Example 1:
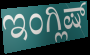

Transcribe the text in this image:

ಇಂಗ್ಲಿಷ್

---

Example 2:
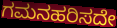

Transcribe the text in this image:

ಗಮನಹರಿಸದೇ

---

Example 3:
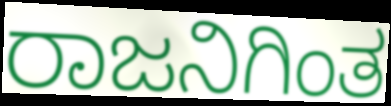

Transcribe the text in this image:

ರಾಜನಿಗಿಂತ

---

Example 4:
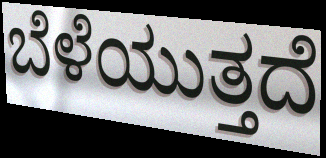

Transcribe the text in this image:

ಬೆಳೆಯುತ್ತದೆ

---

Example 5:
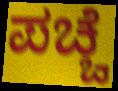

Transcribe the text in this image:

ಪಚ್ಚೆ